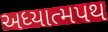
અધ્યાત્મપથ